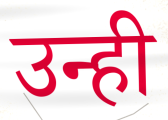
उन्ही